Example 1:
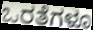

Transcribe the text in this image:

ಒರತೆಗಳೂ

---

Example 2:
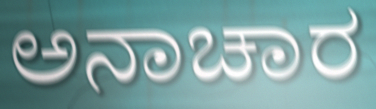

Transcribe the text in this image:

ಅನಾಚಾರ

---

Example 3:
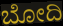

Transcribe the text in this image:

ಬೋದಿ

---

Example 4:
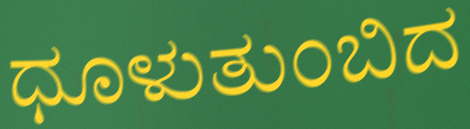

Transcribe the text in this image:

ಧೂಳುತುಂಬಿದ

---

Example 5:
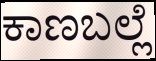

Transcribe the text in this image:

ಕಾಣಬಲ್ಲೆ